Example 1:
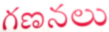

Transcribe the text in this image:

గణనలు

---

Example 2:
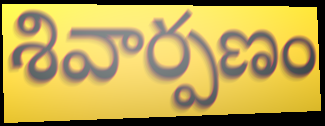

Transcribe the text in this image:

శివార్పణం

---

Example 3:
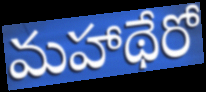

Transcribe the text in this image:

మహాథేరో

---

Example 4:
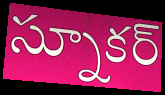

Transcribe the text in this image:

స్నూకర్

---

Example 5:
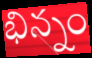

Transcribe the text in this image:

భిన్నం